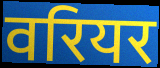
वरियर